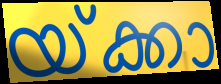
യ്‌ക്കാ